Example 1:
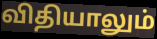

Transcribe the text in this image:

விதியாலும்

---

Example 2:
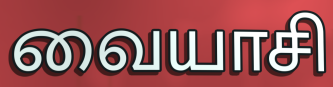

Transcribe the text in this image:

வையாசி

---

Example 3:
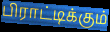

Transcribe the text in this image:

பிராட்டிக்கும்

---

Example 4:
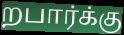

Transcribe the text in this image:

றபார்க்கு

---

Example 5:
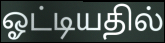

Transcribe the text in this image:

ஓட்டியதில்